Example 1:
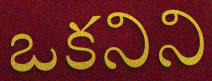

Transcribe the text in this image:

ఒకనిని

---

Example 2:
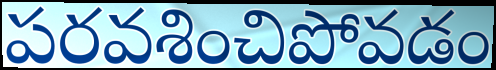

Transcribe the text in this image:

పరవశించిపోవడం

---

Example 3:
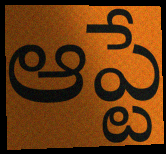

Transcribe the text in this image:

ఆప్టే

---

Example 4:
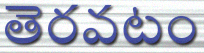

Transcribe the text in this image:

తెరవటం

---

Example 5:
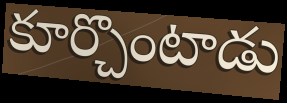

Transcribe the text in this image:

కూర్చొంటాడు